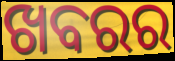
ଖବରର